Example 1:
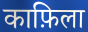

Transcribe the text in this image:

काफ़िला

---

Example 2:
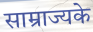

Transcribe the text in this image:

साम्राज्यके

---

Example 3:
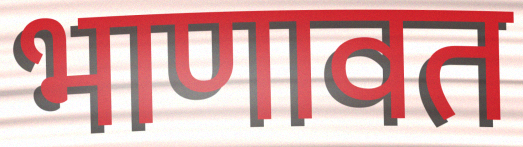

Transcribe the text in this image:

भाणावत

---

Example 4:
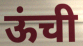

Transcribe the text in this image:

ऊंची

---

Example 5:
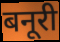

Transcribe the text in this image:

बनूरी